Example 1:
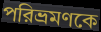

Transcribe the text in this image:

পরিভ্রমণকে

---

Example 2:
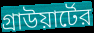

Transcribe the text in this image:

গ্রাউয়ার্টের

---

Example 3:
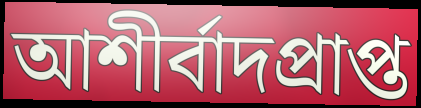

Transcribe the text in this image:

আশীর্বাদপ্রাপ্ত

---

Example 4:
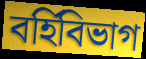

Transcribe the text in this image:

বর্হিবিভাগ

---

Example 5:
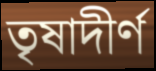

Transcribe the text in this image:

তৃষাদীর্ণ